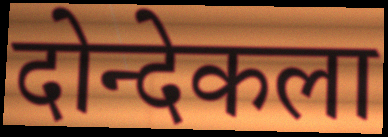
दोन्देकला